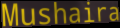
Mushaira